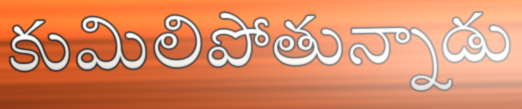
కుమిలిపోతున్నాడు